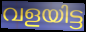
വളയിട്ട